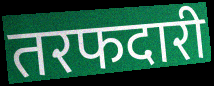
तरफदारी